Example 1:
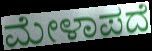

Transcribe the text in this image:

ಮೇಳಾಪದೆ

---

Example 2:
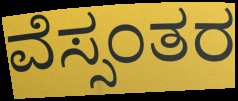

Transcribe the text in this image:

ವೆಸ್ಸಂತರ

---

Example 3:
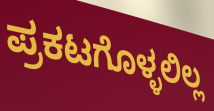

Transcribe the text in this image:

ಪ್ರಕಟಗೊಳ್ಳಲಿಲ್ಲ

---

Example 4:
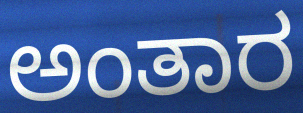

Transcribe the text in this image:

ಅಂತಾರ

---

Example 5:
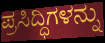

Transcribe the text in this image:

ಪ್ರಸಿದ್ಧಿಗಳನ್ನು